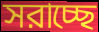
সরাচ্ছে